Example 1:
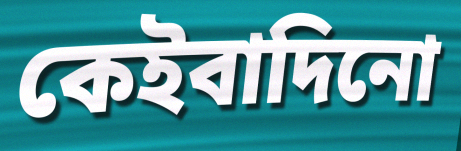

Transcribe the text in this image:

কেইবাদিনো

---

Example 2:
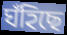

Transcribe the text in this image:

ঘঁহিছে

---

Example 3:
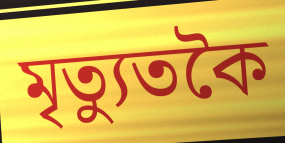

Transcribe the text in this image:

মৃত্যুতকৈ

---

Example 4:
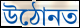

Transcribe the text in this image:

উঠোনত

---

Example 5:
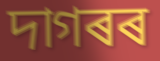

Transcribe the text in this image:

দাগৰৰ